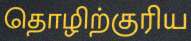
தொழிற்குரிய